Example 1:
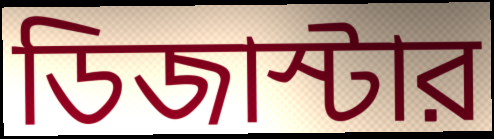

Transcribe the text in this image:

ডিজাস্টার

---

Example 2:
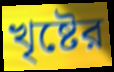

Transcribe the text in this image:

খৃষ্টের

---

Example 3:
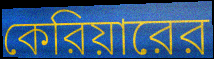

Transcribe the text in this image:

কেরিয়ারের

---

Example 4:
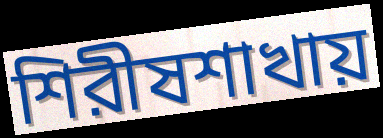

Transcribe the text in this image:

শিরীষশাখায়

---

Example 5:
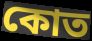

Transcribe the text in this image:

কোত